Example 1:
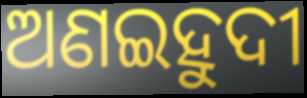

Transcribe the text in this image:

ଅଣଇହୁଦୀ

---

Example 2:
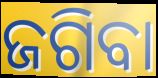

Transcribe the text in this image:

ଜଗିବା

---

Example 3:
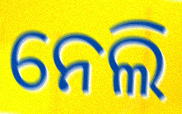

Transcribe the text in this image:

ନେଲି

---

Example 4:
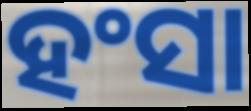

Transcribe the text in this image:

ହଂସା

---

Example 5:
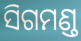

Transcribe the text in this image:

ସିଗମଣ୍ଡ